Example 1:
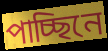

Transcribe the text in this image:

পাচ্ছিনে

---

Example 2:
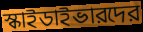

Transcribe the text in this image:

স্কাইডাইভারদের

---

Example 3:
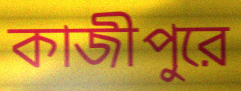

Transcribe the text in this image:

কাজীপুরে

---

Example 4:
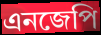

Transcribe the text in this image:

এনজেপি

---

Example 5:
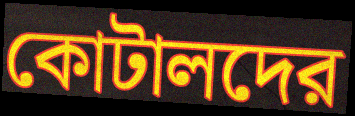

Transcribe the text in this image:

কোটালদের